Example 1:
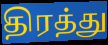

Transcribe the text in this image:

திரத்து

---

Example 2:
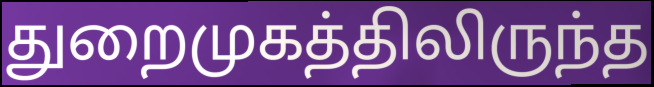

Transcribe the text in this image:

துறைமுகத்திலிருந்த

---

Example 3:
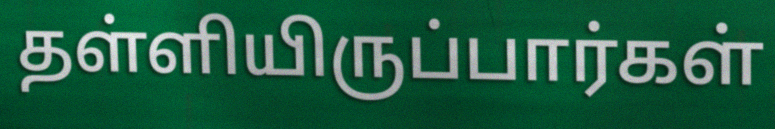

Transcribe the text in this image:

தள்ளியிருப்பார்கள்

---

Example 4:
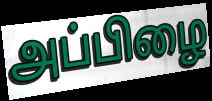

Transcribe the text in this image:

அப்பிழை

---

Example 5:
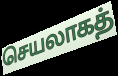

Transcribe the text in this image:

செயலாகத்